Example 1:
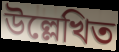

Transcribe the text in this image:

উল্লেখিত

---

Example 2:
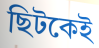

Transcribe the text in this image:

ছিটকেই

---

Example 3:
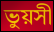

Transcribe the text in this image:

ভুয়সী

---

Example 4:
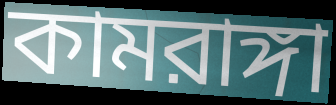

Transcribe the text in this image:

কামরাঙ্গা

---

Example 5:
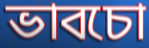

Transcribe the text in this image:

ভাবচো